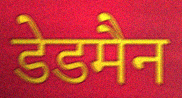
डेडमैन